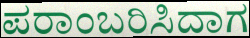
ಪರಾಂಬರಿಸಿದಾಗ